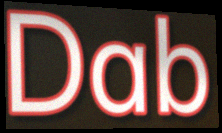
Dab